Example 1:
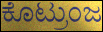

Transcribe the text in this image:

ಕೊಟ್ರುಂಜ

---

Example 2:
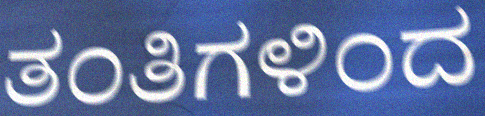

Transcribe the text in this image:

ತಂತಿಗಳಿಂದ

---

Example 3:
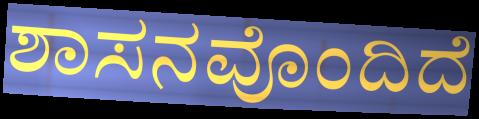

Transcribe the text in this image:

ಶಾಸನವೊಂದಿದೆ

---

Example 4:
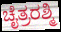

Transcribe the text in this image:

ಚೈತ್ರರಶ್ಮಿ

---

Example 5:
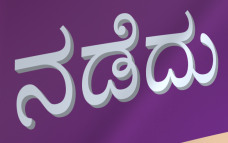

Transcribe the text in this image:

ನಡೆದು